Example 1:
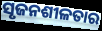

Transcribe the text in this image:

ସୃଜନଶୀଳତାର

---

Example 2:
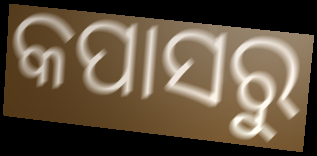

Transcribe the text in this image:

କପାସରୁ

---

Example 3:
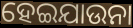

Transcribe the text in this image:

ହେଇଯାଉନା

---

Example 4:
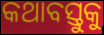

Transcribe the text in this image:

କଥାବସ୍ତୁକୁ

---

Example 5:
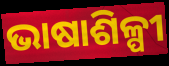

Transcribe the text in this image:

ଭାଷାଶିଳ୍ପୀ